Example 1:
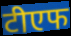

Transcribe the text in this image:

टीएफ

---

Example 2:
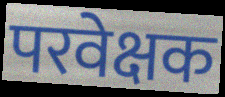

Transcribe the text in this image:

परवेक्षक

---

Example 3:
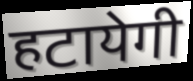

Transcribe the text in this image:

हटायेगी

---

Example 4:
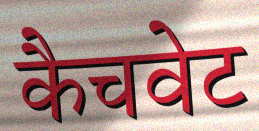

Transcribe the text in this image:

कैचवेट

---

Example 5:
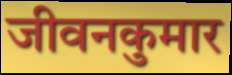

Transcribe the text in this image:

जीवनकुमार